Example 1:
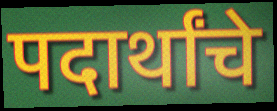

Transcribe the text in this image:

पदार्थांचे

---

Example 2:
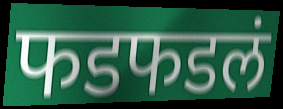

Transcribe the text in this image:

फडफडलं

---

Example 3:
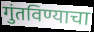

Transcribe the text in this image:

गुंतविण्याचा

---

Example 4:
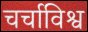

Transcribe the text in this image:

चर्चाविश्व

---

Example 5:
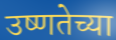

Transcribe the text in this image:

उष्णतेच्या